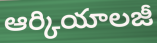
ఆర్కియాలజీ